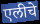
एलीचे